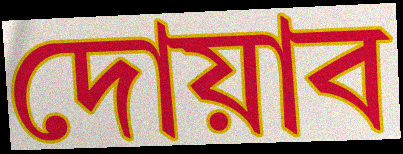
দোয়াব